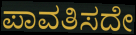
ಪಾವತಿಸದೇ